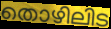
തൊഴിലിട